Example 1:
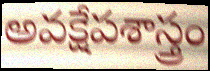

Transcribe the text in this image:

అవక్షేపశాస్త్రం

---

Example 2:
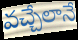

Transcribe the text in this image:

వచ్చేలానే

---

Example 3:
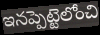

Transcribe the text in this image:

ఇనప్పెట్టెలోంచి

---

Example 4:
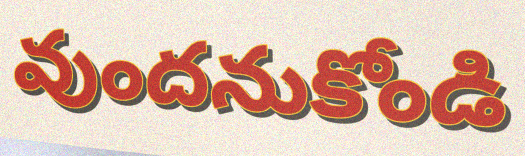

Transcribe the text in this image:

వుందనుకోండి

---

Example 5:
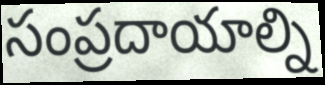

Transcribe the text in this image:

సంప్రదాయాల్ని